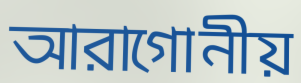
আরাগোনীয়